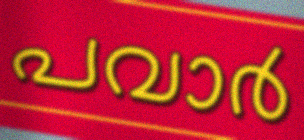
പവാർ